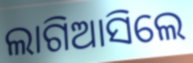
ଲାଗିଆସିଲେ